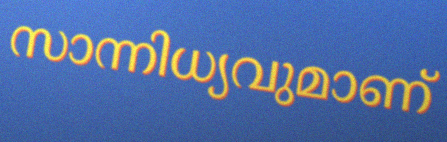
സാന്നിധ്യവുമാണ്